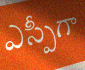
ఎస్పీగా